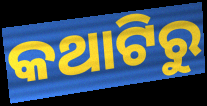
କଥାଟିରୁ